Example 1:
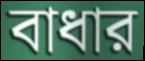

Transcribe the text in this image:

বাধার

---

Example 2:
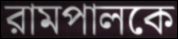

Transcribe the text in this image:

রামপালকে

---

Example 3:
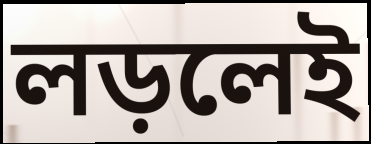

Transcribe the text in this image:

লড়লেই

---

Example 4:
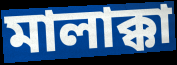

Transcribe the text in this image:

মালাক্কা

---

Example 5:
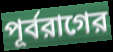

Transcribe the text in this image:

পূর্বরাগের